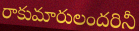
రాకుమారులందరినీ